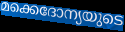
മക്കെദോന്യയുടെ